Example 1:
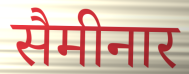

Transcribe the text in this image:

सैमीनार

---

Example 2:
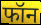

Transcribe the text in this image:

फॉन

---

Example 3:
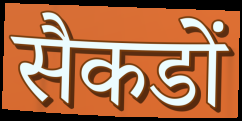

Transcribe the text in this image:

सैकडों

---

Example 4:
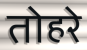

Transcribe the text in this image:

तोहरे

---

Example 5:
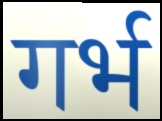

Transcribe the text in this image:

गर्भ